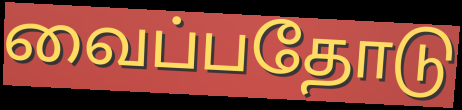
வைப்பதோடு